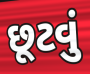
છૂટવું